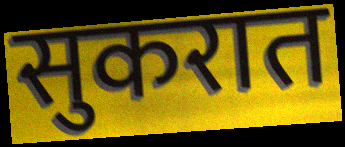
सुकरात